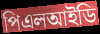
পিএলআইডি